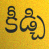
కీడ్చి